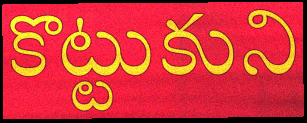
కొట్టుకుని